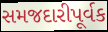
સમજદારીપૂર્વક